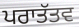
ਪਰਾਤੱਤਵ